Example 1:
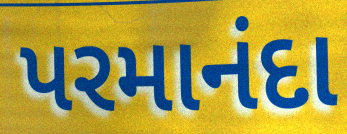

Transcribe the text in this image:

પરમાનંદા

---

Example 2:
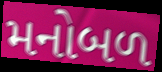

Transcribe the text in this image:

મનોબળ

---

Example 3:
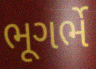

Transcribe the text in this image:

ભૂગર્ભે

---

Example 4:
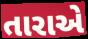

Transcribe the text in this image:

તારાએ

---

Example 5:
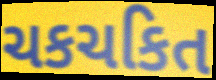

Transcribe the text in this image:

ચકચકિત